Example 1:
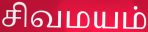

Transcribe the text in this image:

சிவமயம்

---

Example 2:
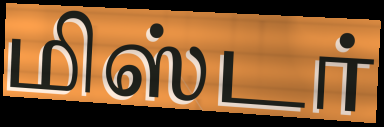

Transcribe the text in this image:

மிஸ்டர்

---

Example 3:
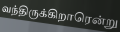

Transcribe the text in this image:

வந்திருக்கிறாரென்று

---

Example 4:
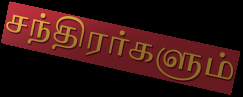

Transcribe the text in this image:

சந்திரர்களும்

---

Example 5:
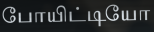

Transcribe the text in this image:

போயிட்டியோ